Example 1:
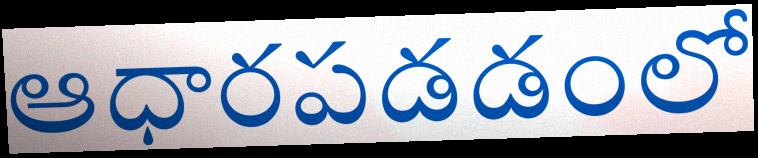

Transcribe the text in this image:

ఆధారపడడంలో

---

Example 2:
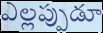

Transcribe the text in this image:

ఎల్లప్పుడూ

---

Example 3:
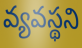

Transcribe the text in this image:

వ్యవస్థని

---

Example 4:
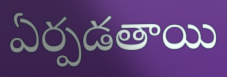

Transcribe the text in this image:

ఏర్పడతాయి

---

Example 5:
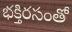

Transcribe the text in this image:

భక్తిరసంతో